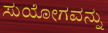
ಸುಯೋಗವನ್ನು